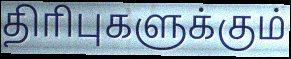
திரிபுகளுக்கும்